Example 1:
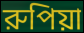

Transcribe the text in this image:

রুপিয়া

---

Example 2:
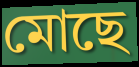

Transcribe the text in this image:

মোছে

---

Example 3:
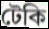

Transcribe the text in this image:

টেকি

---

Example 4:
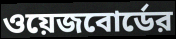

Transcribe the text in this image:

ওয়েজবোর্ডের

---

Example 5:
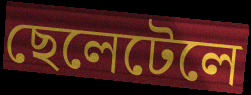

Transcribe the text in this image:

ছেলেটেলে